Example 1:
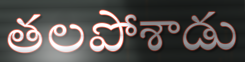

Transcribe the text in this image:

తలపోశాడు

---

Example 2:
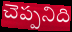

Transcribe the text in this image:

చెప్పనిది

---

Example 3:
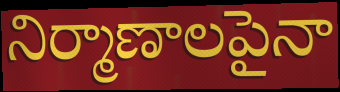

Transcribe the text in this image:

నిర్మాణాలపైనా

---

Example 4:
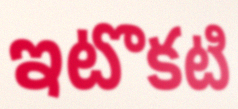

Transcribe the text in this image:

ఇటొకటి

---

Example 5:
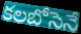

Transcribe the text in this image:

కలబోసెనే